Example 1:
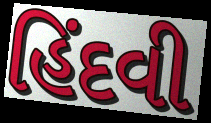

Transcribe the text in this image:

હિંદવી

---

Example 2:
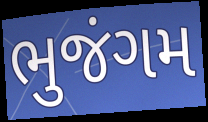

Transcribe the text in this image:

ભુજંગમ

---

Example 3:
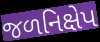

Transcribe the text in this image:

જળનિક્ષેપ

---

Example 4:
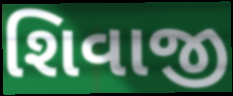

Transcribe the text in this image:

શિવાજી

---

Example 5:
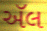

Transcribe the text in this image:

ઍલ